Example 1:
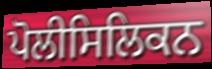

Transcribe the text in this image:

ਪੋਲੀਸਿਲਿਕਨ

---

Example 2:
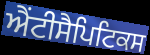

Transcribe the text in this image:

ਐਂਟੀਸੈਪਿਟਿਕਸ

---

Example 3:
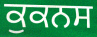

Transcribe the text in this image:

ਕੁਕਨਸ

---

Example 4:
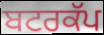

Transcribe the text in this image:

ਬਟਰਕੱਪ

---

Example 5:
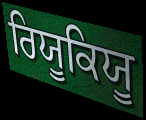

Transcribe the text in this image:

ਰਿਯੂਕਿਯੂ